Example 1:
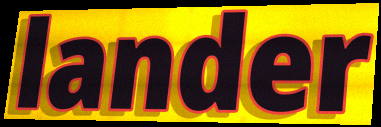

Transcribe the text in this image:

lander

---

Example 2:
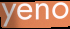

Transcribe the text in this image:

yeno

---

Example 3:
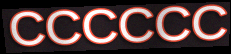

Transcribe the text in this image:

CCCCCC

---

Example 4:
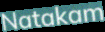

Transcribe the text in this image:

Natakam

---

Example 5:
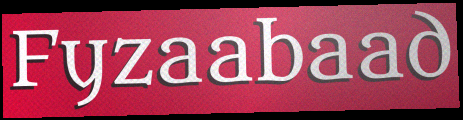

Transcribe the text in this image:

Fyzaabaad